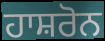
ਹਾਸ਼ਰੋਨ